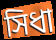
সিধা